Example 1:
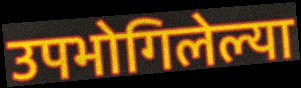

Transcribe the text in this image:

उपभोगिलेल्या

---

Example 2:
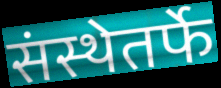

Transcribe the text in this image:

संस्थेतर्फे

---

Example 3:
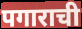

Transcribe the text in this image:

पगाराची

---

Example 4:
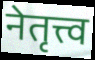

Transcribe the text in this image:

नेतृत्त्व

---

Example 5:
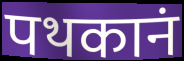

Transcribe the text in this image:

पथकानं